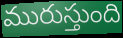
మురుస్తుంది